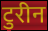
टुरीन